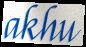
akhu